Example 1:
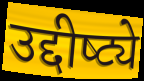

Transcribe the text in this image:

उद्दीष्ट्ये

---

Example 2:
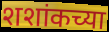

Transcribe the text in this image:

शशांकच्या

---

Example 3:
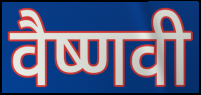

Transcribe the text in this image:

वैष्णवी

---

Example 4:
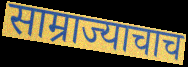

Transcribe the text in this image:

साम्राज्याचाच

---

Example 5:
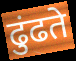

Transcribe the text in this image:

ढुंढते